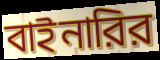
বাইনারির